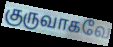
குருவாகவே